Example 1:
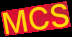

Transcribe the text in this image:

MCS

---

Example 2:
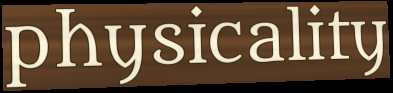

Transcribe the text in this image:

physicality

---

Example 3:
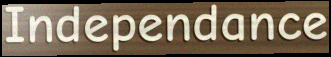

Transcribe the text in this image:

Independance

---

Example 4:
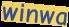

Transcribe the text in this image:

winwa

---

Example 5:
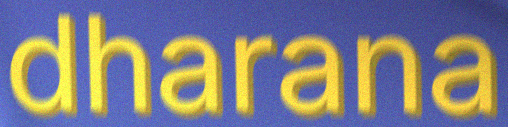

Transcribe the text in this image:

dharana